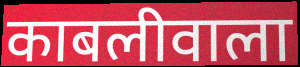
काबलीवाला